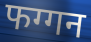
फग्गन